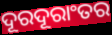
ଦୂରଦୂରାଂତର